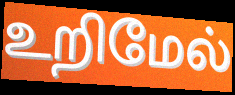
உறிமேல்